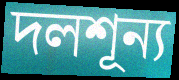
দলশূন্য